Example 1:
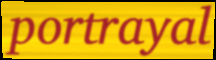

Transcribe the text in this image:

portrayal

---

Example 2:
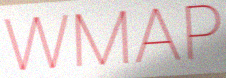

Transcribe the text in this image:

WMAP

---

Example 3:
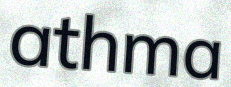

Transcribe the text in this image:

athma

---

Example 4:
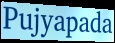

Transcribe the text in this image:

Pujyapada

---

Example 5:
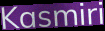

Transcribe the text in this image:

Kasmiri